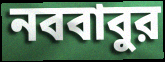
নববাবুর